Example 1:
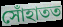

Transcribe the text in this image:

সোঁহাতত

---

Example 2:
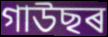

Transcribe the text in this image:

গাউছৰ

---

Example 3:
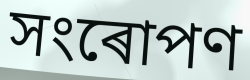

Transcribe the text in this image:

সংৰোপণ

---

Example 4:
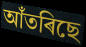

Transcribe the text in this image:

আঁতৰিছে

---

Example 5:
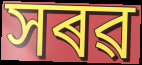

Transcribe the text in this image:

সৰৱ